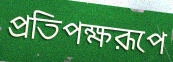
প্রতিপক্ষরূপে